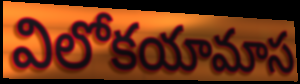
విలోకయామాస